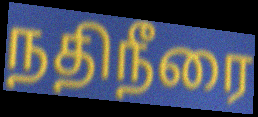
நதிநீரை